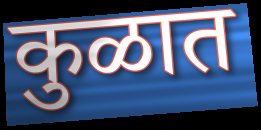
कुळात